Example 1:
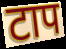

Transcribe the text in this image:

टाप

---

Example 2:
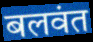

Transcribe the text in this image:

बलवंत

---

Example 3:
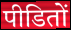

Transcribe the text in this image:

पीडितों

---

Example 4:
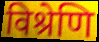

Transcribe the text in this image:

विश्रेणि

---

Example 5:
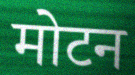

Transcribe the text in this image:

मोटन